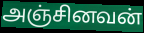
அஞ்சினவன்